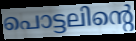
പൊട്ടലിന്റെ